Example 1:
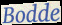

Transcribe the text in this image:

Bodde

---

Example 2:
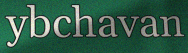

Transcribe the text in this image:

ybchavan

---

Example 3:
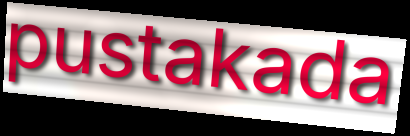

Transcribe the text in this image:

pustakada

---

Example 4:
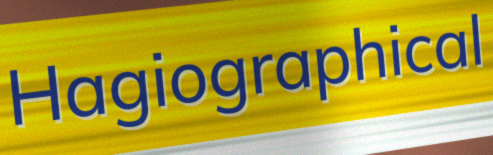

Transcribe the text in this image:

Hagiographical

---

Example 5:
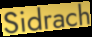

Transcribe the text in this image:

Sidrach